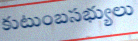
కుటుంబసభ్యులు